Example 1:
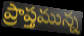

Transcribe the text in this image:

ప్రాప్తమున్న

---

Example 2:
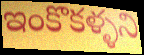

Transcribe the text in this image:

ఇంకొకళ్ళని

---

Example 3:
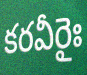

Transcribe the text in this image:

కరవీరైః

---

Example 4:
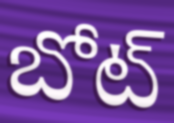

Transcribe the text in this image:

బోట్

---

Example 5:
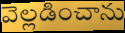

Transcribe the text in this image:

వెల్లడించాను